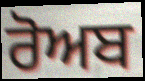
ਰੋਅਬ